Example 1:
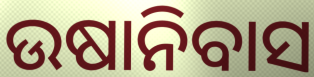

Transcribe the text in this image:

ଉଷାନିବାସ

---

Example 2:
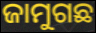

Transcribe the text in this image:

ଜାମୁଗଛ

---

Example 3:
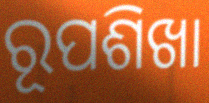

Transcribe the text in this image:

ରୂପଶିଖା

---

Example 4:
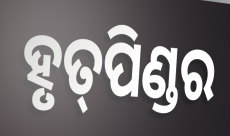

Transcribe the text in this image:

ହୃତ୍‍ପିଣ୍ଡର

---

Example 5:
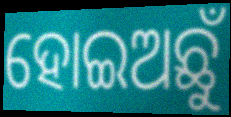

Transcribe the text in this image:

ହୋଇଅଛୁଁ